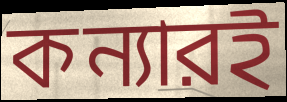
কন্যারই